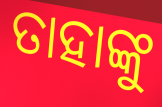
ତାହାଙ୍କୁ